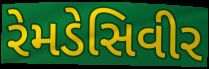
રેમડેસિવીર